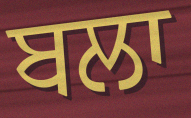
ਬਲਾ